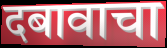
दबावाचा